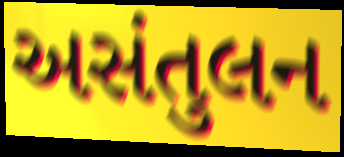
અસંતુલન